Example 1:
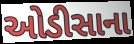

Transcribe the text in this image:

ઓડીસાના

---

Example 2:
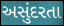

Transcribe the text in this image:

અસુંદરતા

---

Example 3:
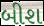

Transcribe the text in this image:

બીશ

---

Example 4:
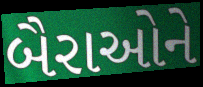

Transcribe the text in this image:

બૈરાઓને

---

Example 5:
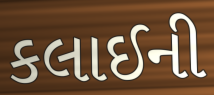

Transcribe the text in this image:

કલાઈની